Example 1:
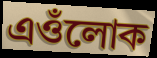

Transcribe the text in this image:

এওঁলোক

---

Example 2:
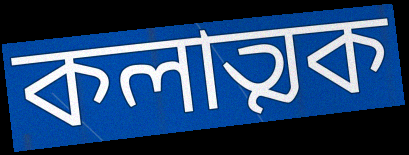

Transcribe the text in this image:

কলাত্মক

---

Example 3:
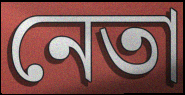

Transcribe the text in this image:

নেতা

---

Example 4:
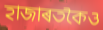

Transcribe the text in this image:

হাজাৰতকৈও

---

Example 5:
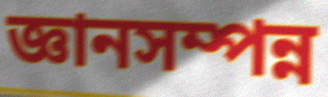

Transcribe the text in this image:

জ্ঞানসম্পন্ন